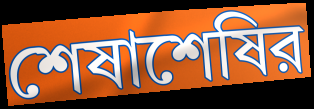
শেষাশেষির